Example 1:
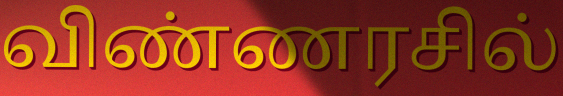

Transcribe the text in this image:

விண்ணரசில்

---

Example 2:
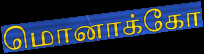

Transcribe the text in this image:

மொனாக்கோ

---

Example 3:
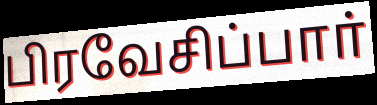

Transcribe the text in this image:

பிரவேசிப்பார்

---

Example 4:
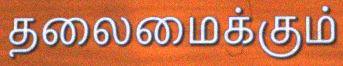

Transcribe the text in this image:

தலைமைக்கும்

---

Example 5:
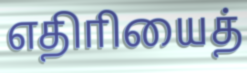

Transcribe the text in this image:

எதிரியைத்